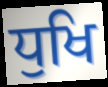
ਧੁਖਿ